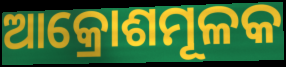
ଆକ୍ରୋଶମୂଳକ